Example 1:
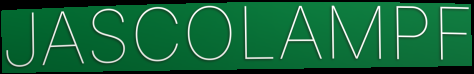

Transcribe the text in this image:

JASCOLAMPF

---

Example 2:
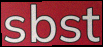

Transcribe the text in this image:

sbst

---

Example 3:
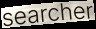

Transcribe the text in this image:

searcher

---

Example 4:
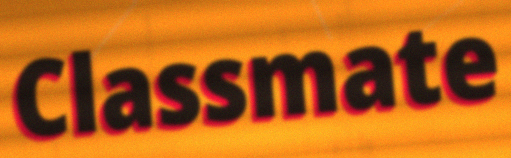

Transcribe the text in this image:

Classmate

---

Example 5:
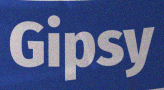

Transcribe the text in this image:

Gipsy